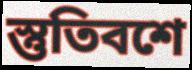
স্তুতিবশে